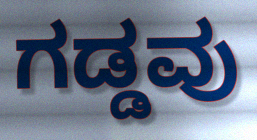
ಗಡ್ಡವು